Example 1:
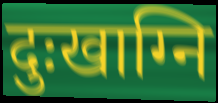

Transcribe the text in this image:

दुःखाग्नि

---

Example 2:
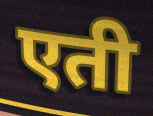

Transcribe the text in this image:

एती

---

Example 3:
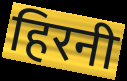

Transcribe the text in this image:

हिरनी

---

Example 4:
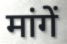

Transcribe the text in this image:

मांगें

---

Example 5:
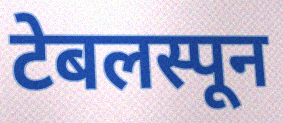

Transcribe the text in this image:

टेबलस्पून